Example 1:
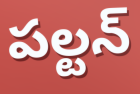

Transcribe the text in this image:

పల్టన్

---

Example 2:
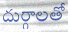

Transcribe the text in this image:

దుర్గాలతో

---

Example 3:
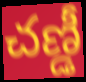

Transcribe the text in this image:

చణ్డీ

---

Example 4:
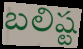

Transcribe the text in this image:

బలిష్ట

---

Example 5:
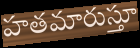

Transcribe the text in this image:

హతమారుస్తూ